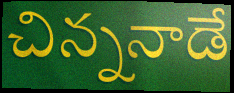
చిన్ననాడే